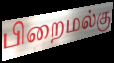
பிறைமல்கு